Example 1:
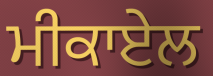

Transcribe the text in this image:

ਮੀਕਾਏਲ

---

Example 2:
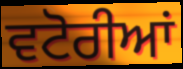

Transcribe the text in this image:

ਵਟੋਰੀਆਂ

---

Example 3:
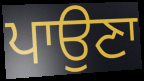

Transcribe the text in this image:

ਪਾਉਣਾ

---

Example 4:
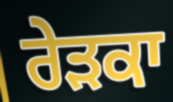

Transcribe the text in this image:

ਰੇੜਕਾ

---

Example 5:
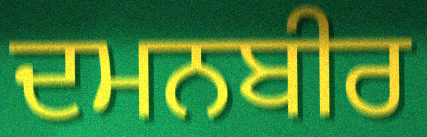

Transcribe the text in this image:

ਦਮਨਬੀਰ